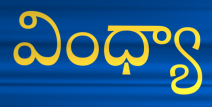
వింధ్యా